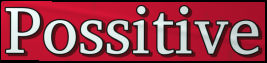
Possitive